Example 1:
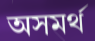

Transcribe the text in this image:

অসমর্থ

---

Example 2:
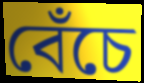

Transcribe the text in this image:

বেঁচে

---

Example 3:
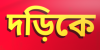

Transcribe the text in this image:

দড়িকে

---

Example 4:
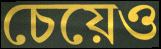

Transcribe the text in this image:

চেয়েও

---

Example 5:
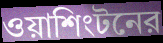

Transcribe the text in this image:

ওয়াশিংটনের